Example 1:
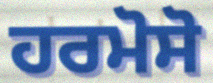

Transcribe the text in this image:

ਹਰਮੋਸੋ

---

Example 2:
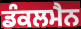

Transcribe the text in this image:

ਡੰਕਲਮੈਨ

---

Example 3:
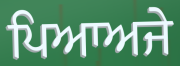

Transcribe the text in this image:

ਪਿਆਅਜੇ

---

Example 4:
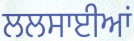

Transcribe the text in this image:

ਲਲਸਾਈਆਂ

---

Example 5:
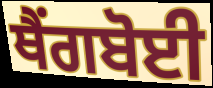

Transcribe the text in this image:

ਥੈਂਗਬੋਈ